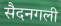
सैदनगली